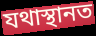
যথাস্থানত